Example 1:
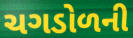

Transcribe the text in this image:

ચગડોળની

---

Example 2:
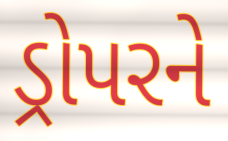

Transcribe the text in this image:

ડ્રોપરને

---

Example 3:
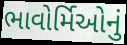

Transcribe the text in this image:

ભાવોર્મિઓનું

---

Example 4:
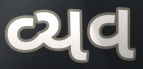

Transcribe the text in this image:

વ્યવ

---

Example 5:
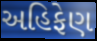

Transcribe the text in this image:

અહિફેણ